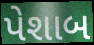
પેશાબ